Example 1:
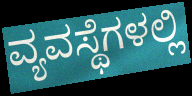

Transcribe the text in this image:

ವ್ಯವಸ್ಥೆಗಳಲ್ಲಿ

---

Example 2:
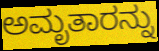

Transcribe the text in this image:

ಅಮೃತಾರನ್ನು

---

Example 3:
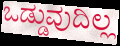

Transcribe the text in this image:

ಒಡ್ಡುವುದಿಲ್ಲ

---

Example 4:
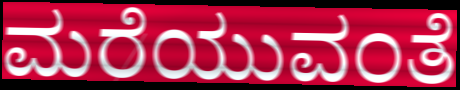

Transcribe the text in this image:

ಮರೆಯುವಂತೆ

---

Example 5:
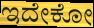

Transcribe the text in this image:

ಇದೇಕೋ